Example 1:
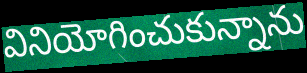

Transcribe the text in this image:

వినియోగించుకున్నాను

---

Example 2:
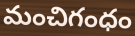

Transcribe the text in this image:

మంచిగంధం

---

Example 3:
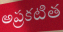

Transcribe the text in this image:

అప్రకటిత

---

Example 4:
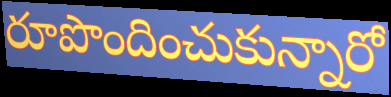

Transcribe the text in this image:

రూపొందించుకున్నారో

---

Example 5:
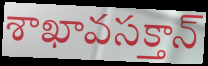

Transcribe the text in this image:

శాఖావసక్తాన్